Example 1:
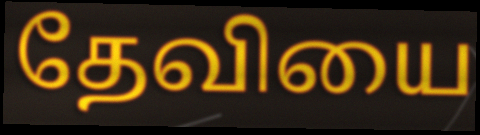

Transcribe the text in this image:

தேவியை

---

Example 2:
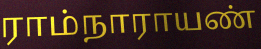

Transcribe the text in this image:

ராம்நாராயண்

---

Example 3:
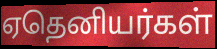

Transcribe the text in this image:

ஏதெனியர்கள்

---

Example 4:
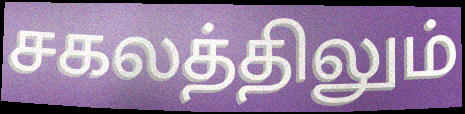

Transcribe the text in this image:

சகலத்திலும்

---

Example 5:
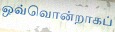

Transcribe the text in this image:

ஒவ்வொன்றாகப்